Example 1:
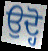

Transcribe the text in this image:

ਉਦ੍ਹੋ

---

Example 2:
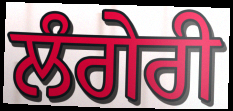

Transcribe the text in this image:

ਲੰਗੇਰੀ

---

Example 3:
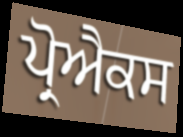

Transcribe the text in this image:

ਪ੍ਰੋਐਕਸ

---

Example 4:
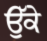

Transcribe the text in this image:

ਉੱਕੇ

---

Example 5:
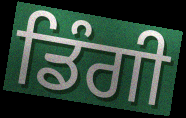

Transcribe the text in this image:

ਡਿੰਗੀ